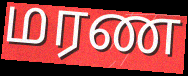
மரண